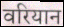
वरियान